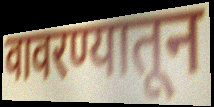
वावरण्यातून